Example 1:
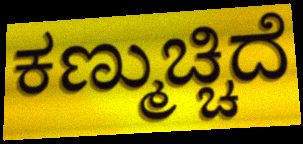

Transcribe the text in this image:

ಕಣ್ಮುಚ್ಚಿದೆ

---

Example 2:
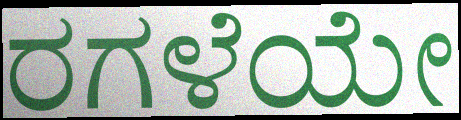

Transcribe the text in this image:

ರಗಳೆಯೇ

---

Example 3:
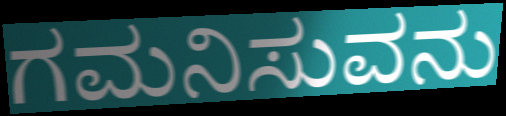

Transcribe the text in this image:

ಗಮನಿಸುವನು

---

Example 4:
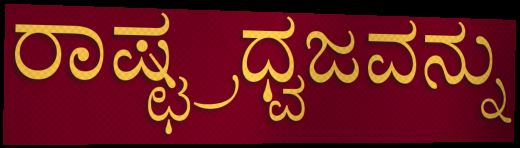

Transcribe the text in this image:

ರಾಷ್ಟ್ರಧ್ವಜವನ್ನು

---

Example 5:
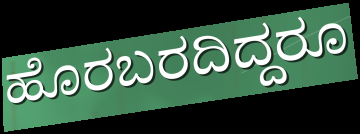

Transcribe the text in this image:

ಹೊರಬರದಿದ್ದರೂ